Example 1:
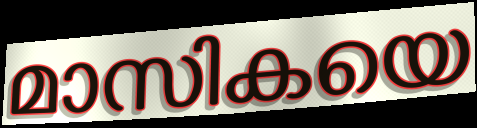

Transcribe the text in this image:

മാസികയെ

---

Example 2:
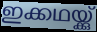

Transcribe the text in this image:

ഇക്കഥയ്ക്കു്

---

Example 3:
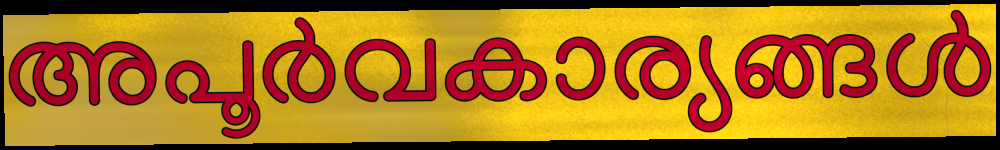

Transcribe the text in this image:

അപൂർവകാര്യങ്ങൾ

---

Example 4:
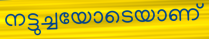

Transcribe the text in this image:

നട്ടുച്ചയോടെയാണ്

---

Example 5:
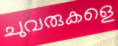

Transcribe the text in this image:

ചുവരുകളെ